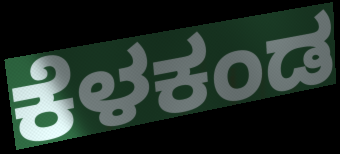
ಕೆಳಕಂಡ